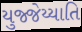
યુજ્જેય્યાતિ